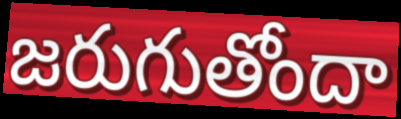
జరుగుతోందా